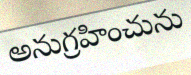
అనుగ్రహించును